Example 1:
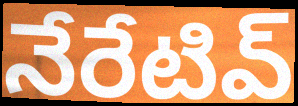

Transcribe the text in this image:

నేరేటివ్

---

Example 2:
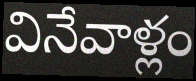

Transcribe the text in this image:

వినేవాళ్లం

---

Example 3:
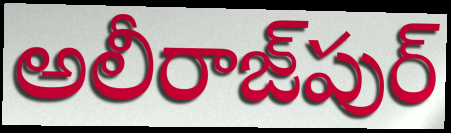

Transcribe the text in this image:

అలీరాజ్‌పుర్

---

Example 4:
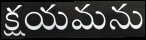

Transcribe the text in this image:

క్షయమను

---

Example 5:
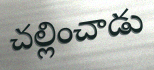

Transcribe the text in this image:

చల్లించాడు